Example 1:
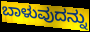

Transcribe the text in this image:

ಬಾಳುವುದನ್ನು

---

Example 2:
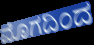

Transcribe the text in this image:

ಮೊಗದಿಂದ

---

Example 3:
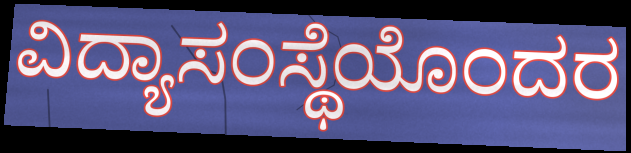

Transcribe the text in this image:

ವಿದ್ಯಾಸಂಸ್ಥೆಯೊಂದರ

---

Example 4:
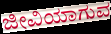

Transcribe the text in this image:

ಜೀವಿಯಾಗುವ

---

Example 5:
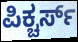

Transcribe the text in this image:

ಪಿಕ್ಚರ್ಸ್